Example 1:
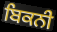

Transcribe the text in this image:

ਬਿਕਨੀ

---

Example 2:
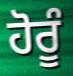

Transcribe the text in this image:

ਹੋਰੂੰ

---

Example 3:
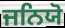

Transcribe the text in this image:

ਜਨਿਯੋ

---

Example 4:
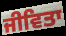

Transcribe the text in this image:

ਜੀਵਿਤਾ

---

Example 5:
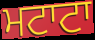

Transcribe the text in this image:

ਮਟਾਟਾ